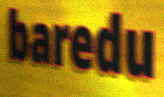
baredu